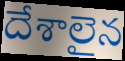
దేశాలైన